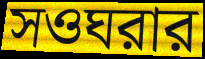
সওঘরার